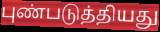
புண்படுத்தியது